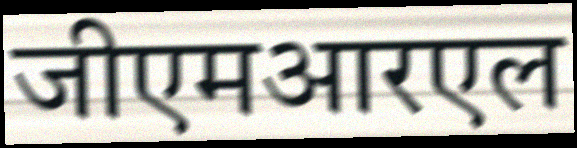
जीएमआरएल